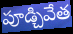
పూడ్చివేత